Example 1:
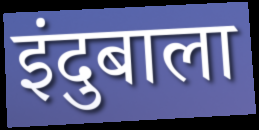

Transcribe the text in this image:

इंदुबाला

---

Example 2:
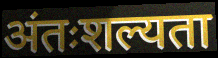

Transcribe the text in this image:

अंतःशल्यता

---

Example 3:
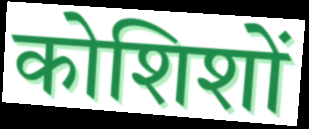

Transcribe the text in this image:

कोशिशों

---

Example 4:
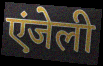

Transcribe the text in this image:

एंजेली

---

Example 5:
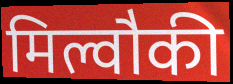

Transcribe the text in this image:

मिल्वौकी